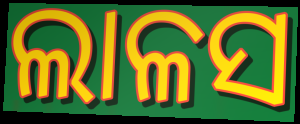
ଲାଳସ